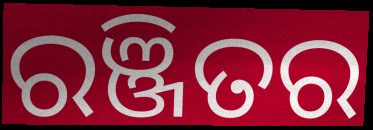
ରଞ୍ଜିତର